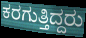
ಕರಗುತ್ತಿದ್ದರು